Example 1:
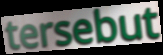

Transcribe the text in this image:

tersebut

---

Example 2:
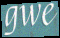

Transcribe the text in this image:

gwe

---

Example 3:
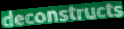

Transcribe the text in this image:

deconstructs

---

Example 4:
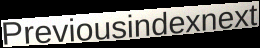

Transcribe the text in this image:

Previousindexnext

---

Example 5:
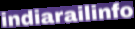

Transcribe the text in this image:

indiarailinfo